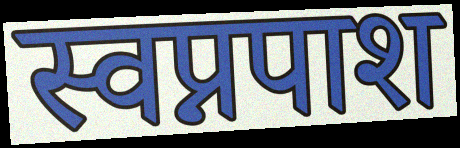
स्वप्नपाश